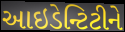
આઇડેન્ટિટીને